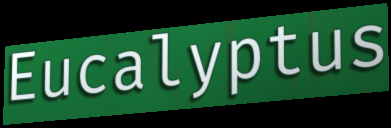
Eucalyptus